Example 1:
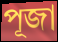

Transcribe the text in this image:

পূজা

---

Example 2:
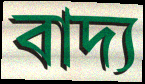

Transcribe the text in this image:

বাদ্য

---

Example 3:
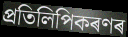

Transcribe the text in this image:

প্ৰতিলিপিকৰণৰ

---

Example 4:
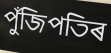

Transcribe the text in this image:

পুঁজিপতিৰ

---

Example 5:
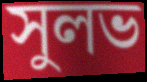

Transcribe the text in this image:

সুলভ